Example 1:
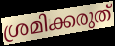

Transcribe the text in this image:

ശ്രമിക്കരുത്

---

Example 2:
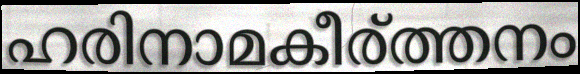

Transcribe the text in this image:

ഹരിനാമകീര്ത്തനം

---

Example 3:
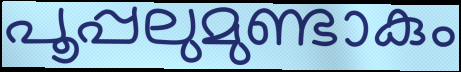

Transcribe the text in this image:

പൂപ്പലുമുണ്ടാകും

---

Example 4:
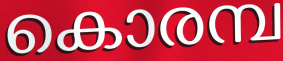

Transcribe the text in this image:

കൊരമ്പ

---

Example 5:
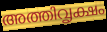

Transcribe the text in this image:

അത്തിവൃക്ഷം